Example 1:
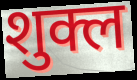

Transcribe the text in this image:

शुक्‍ल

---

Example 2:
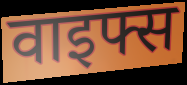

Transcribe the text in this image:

वाइफ्स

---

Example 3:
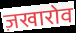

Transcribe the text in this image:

ज़खारोव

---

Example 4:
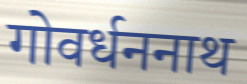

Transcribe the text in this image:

गोवर्धननाथ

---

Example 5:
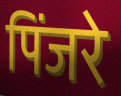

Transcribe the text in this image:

पिंजरे